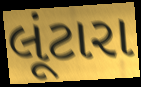
લૂંટારા